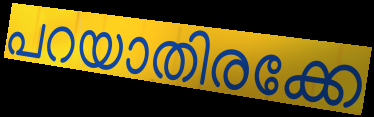
പറയാതിരക്കേ